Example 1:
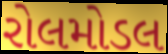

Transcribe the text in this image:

રોલમોડલ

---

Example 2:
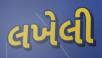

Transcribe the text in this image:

લખેલી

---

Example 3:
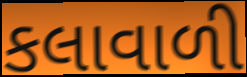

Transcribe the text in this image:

કલાવાળી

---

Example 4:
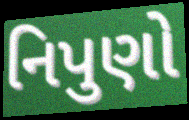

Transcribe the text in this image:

નિપુણો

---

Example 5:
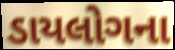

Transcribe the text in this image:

ડાયલોગના